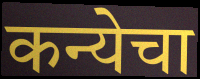
कन्येचा